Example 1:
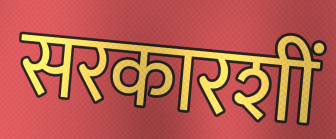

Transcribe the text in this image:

सरकारशीं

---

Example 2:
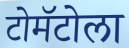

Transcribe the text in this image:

टोमॅटोला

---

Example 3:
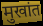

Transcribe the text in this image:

मुखांत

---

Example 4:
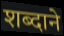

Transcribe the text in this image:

शब्दाने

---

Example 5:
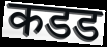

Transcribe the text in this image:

कडड